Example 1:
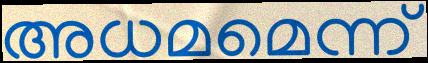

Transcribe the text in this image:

അധമമെന്ന്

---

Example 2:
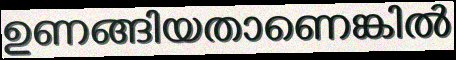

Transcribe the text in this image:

ഉണങ്ങിയതാണെങ്കിൽ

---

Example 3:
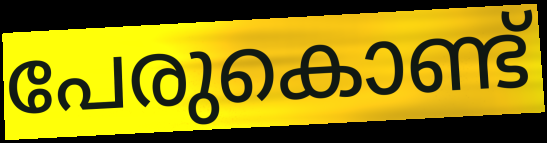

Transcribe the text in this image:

പേരുകൊണ്ട്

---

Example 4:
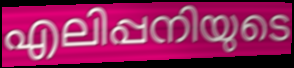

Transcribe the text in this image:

എലിപ്പനിയുടെ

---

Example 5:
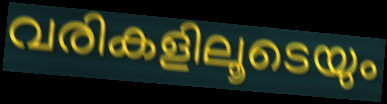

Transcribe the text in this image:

വരികളിലൂടെയും